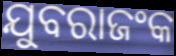
ଯୁବରାଜଂକ